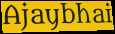
Ajaybhai